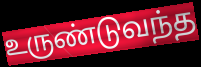
உருண்டுவந்த